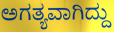
ಅಗತ್ಯವಾಗಿದ್ದು